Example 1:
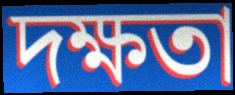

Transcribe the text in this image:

দক্ষতা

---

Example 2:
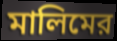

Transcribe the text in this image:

মালিমের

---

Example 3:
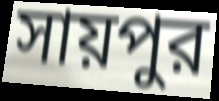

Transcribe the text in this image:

সায়পুর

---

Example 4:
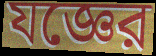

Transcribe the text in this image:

যজ্ঞের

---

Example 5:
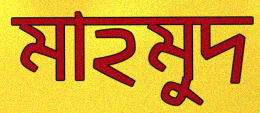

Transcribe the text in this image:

মাহমুদ